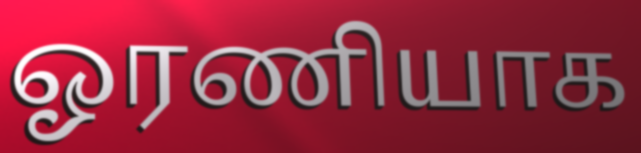
ஓரணியாக